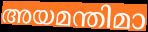
അയമന്തിമാ